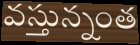
వస్తున్నంత